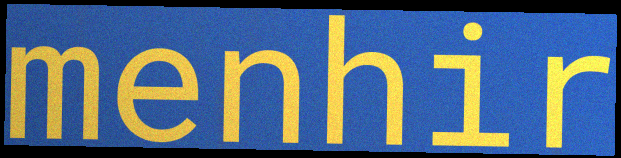
menhir